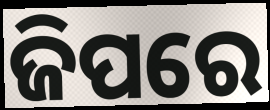
ଜିପରେ